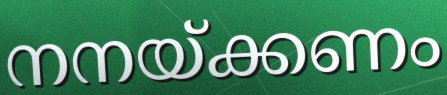
നനയ്ക്കണം